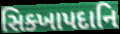
સિક્ખાપદાનિ